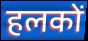
हलकों